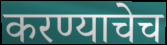
करण्याचेच